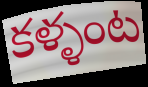
కళ్ళంట